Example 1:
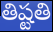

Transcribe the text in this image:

తిష్టతి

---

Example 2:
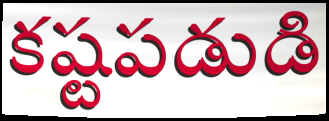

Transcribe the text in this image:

కష్టపడుడి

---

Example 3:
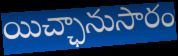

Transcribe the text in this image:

యిచ్ఛానుసారం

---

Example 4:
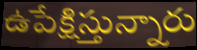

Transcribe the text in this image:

ఉపేక్షిస్తున్నారు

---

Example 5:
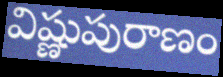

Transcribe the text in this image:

విష్ణుపురాణం